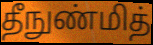
தீநுண்மித்